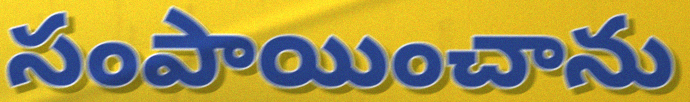
సంపాయించాను